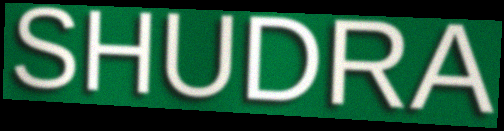
SHUDRA